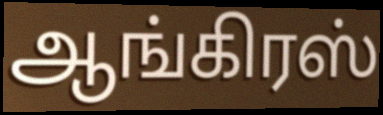
ஆங்கிரஸ்